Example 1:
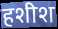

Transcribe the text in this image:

हशीश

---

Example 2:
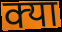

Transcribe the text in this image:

क्‍या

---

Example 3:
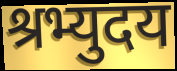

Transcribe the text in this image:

श्रभ्युदय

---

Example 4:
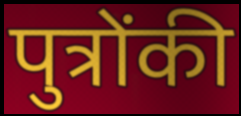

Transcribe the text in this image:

पुत्रोंकी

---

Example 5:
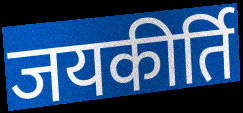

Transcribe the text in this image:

जयकीर्ति